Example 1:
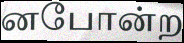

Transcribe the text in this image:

னபோன்ற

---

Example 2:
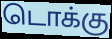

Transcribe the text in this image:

டொக்கு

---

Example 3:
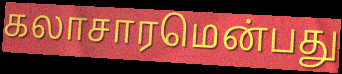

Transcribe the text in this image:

கலாசாரமென்பது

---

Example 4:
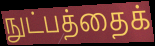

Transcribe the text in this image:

நுட்பத்தைக்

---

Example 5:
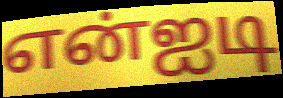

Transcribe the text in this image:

என்ஐடி